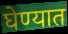
घेण्यात